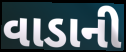
વાડાની